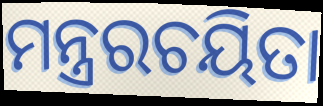
ମନ୍ତ୍ରରଚୟିତା